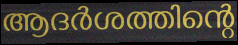
ആദർശത്തിന്റെ